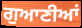
ਗੁਆਣੀਆਂ